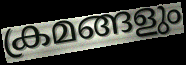
ക്രമങ്ങളും